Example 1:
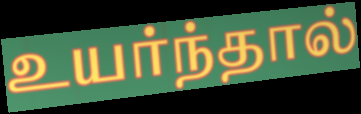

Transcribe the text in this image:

உயர்ந்தால்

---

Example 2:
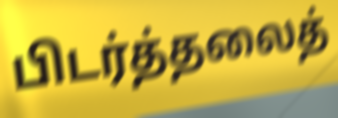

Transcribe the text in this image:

பிடர்த்தலைத்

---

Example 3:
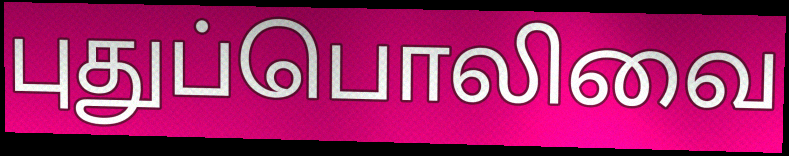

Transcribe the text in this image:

புதுப்பொலிவை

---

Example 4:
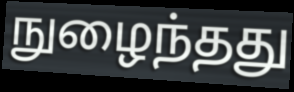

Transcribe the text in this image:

நுழைந்தது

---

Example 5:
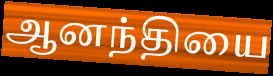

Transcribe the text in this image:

ஆனந்தியை